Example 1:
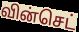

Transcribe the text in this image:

வின்செட்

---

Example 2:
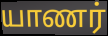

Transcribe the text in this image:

யாணர்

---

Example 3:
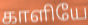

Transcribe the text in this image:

காளியே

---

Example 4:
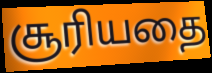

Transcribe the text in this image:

சூரியதை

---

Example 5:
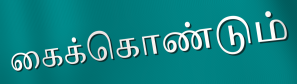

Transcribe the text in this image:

கைக்கொண்டும்